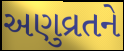
અણુવ્રતને